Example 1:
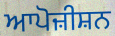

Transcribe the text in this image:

ਆਪੋਜ਼ੀਸ਼ਨ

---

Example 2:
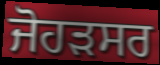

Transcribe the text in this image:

ਜੋਹੜਸਰ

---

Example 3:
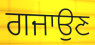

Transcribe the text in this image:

ਗਜਾਉਣ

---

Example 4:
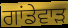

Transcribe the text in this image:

ਗਾਂਡੇਵਾੜ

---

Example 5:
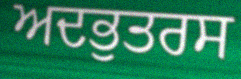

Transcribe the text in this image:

ਅਦਭੁਤਰਸ